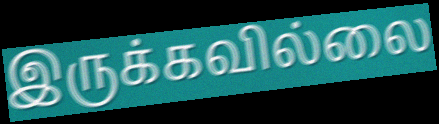
இருக்கவில்லை